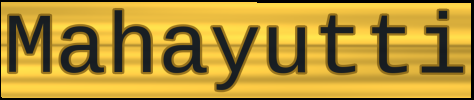
Mahayutti